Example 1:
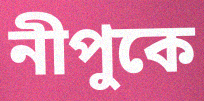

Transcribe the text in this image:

নীপুকে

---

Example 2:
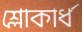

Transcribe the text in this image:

শ্লোকার্ধ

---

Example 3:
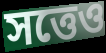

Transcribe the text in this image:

সত্তেও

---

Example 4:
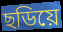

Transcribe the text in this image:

ছডিয়ে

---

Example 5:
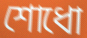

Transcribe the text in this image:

শোধো